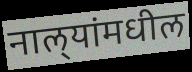
नाल्यांमधील